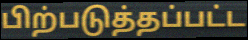
பிற்படுத்தப்பட்ட